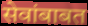
सेवांबाबत